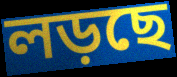
লড়ছে